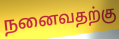
நனைவதற்கு